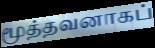
மூத்தவனாகப்